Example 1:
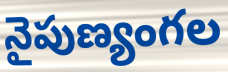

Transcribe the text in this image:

నైపుణ్యంగల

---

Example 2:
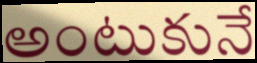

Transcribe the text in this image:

అంటుకునే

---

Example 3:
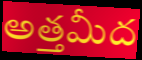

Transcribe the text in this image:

అత్తమీద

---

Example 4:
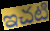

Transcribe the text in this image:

ఇచటి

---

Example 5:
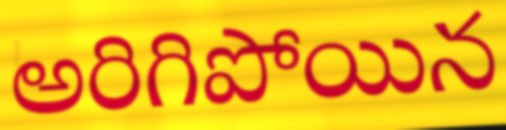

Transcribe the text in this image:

అరిగిపోయిన